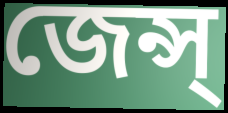
জেন্স্